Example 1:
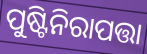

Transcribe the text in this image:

ପୁଷ୍ଟିନିରାପତ୍ତା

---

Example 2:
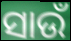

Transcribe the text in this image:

ସାଉଁ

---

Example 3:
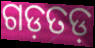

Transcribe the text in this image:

ଗଡ଼ତଡ଼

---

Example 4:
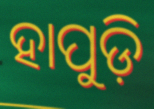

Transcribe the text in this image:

ହାପୁଡ଼ି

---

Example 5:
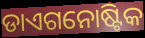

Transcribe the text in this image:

ଡାଏଗନୋଷ୍ଟିକ